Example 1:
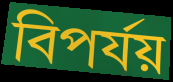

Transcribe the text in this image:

বিপর্যয়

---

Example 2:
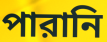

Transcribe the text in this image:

পারানি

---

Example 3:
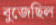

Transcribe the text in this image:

বুজেছিল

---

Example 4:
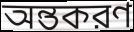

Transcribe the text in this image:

অন্তকরণ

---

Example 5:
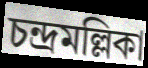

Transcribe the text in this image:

চন্দ্রমল্লিকা